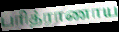
பரித்ராணாய